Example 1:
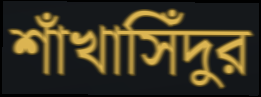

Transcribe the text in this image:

শাঁখাসিঁদুর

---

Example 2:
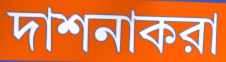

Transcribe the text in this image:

দাশনাকরা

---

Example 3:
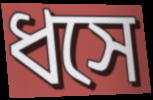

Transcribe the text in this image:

ধসে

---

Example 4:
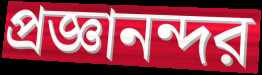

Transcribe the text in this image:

প্রজ্ঞানন্দর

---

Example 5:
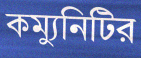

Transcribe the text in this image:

কম্যুনিটির